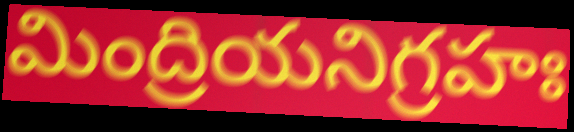
మింద్రియనిగ్రహః